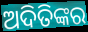
ଅଦିତିଙ୍କର